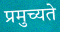
प्रमुच्यते